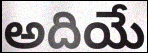
అదియే